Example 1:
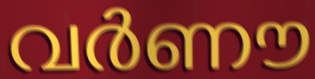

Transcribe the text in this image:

വർണൗ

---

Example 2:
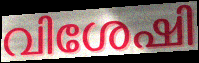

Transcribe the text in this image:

വിശേഷി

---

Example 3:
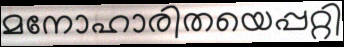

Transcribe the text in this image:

മനോഹാരിതയെപ്പറ്റി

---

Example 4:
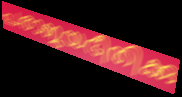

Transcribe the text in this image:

പരാജയഭീതിക്കു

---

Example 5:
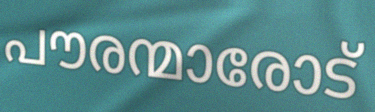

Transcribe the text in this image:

പൗരന്മാരോട്